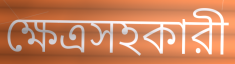
ক্ষেত্রসহকারী